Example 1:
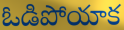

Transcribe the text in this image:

ఓడిపోయాక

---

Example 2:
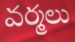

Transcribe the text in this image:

వర్మలు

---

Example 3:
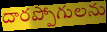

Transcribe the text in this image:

దారప్పోగులను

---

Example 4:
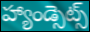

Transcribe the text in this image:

హ్యాండ్సెట్స్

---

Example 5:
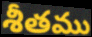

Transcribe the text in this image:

శీతము